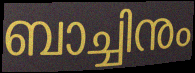
ബാച്ചിനും